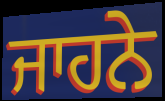
ਜਾਹਨੇ